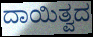
ದಾಯಿತ್ವದ